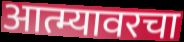
आत्म्यावरचा